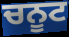
ਚਨੂਟ